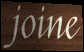
joine